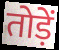
तोड़ें